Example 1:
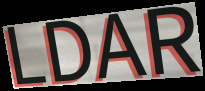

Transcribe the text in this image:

LDAR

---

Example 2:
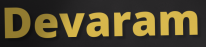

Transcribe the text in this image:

Devaram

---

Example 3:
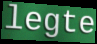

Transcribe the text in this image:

legte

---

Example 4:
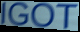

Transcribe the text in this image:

IGOT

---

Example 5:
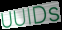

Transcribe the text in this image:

UUIDs